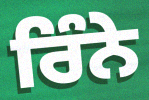
ਰਿੰਨੇ